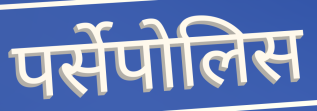
पर्सेपोलिस